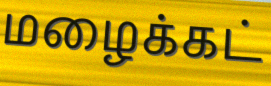
மழைக்கட்